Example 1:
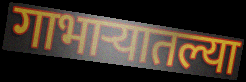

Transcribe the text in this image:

गाभाऱ्यातल्या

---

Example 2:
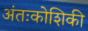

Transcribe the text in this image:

अंतःकोशिकी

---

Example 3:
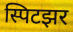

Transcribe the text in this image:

स्पिटझर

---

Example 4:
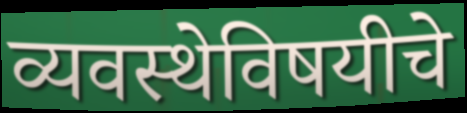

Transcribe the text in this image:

व्यवस्थेविषयीचे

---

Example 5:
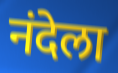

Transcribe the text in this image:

नंदेला